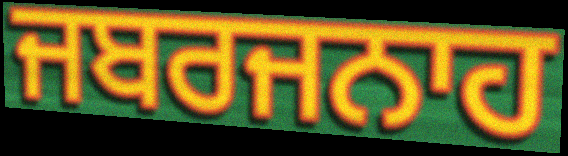
ਜਬਰਜਨਾਹ